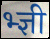
भ्ज्ञी